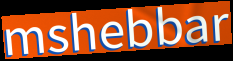
mshebbar